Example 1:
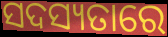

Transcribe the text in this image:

ସଦସ୍ୟତାରେ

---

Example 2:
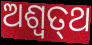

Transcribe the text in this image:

ଅଶ୍ଵତ୍‍ଥ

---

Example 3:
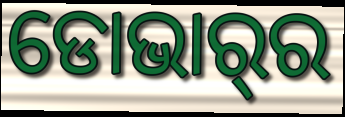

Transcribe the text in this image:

ଡୋଭାର୍‌ର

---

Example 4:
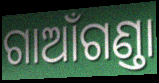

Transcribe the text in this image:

ଗାଆଁଗଣ୍ଡା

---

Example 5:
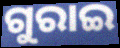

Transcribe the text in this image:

ଗୁରାଇ